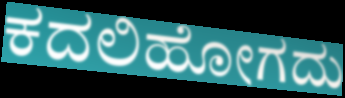
ಕದಲಿಹೋಗದು